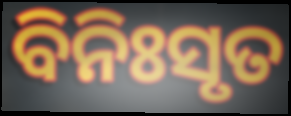
ବିନିଃସୃତ